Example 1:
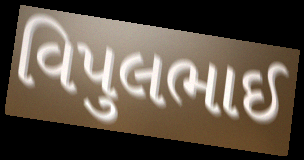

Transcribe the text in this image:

વિપુલભાઈ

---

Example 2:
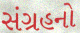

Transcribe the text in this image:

સંગ્રહનો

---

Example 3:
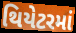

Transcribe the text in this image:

થિયેટરમાં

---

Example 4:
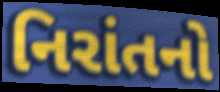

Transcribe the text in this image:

નિરાંતનો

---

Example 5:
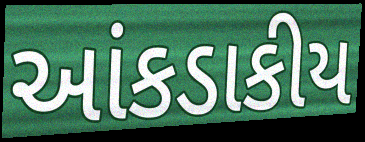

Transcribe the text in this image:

આંકડાકીય